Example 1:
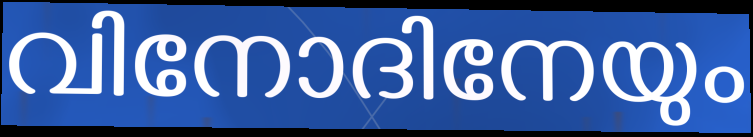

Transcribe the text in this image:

വിനോദിനേയും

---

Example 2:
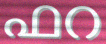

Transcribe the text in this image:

ഫറ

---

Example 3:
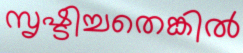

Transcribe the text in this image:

സൃഷ്ടിച്ചതെങ്കിൽ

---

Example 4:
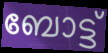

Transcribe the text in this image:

ബോട്ട്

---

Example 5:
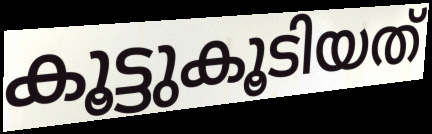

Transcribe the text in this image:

കൂട്ടുകൂടിയത്